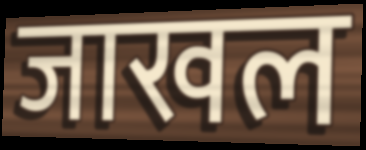
जाखल